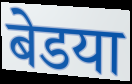
बेडया